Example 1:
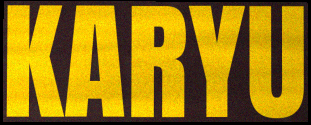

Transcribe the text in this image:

KARYU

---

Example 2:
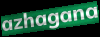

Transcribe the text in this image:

azhagana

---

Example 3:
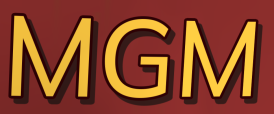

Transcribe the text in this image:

MGM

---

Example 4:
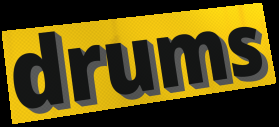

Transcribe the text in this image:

drums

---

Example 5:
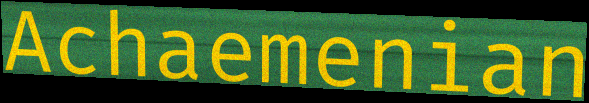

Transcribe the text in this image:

Achaemenian